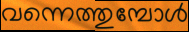
വന്നെത്തുമ്പോൾ